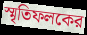
স্মৃতিফলকের